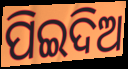
ପିଇଦିଅ